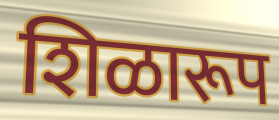
शिळारूप